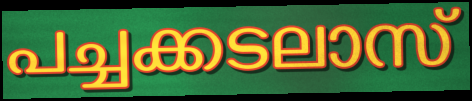
പച്ചക്കടലാസ്